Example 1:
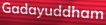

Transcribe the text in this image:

Gadayuddham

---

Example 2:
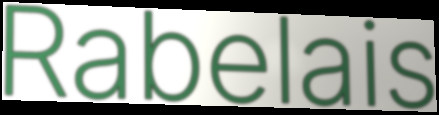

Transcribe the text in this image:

Rabelais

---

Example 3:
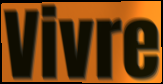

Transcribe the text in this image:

Vivre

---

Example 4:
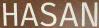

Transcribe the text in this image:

HASAN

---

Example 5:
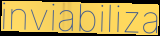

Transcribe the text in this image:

inviabiliza